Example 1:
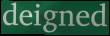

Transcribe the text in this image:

deigned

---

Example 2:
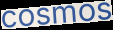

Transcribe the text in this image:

cosmos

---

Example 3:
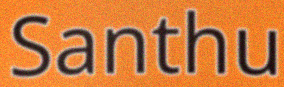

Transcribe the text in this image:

Santhu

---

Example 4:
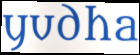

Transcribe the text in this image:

yudha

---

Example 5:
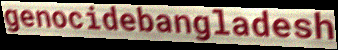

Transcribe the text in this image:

genocidebangladesh